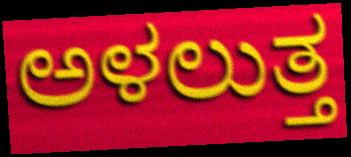
ಅಳಲುತ್ತ